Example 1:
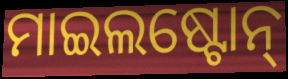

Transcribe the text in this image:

ମାଇଲଷ୍ଟୋନ୍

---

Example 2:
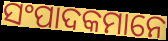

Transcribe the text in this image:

ସଂପାଦକମାନେ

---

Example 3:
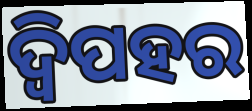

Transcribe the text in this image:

ଦ୍ୱିପହର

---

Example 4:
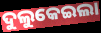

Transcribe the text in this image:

ଦୁଲୁକେଇଲା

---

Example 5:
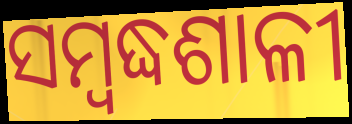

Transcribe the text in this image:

ସମ୍ବଦ୍ଧଶାଳୀ